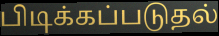
பிடிக்கப்படுதல்